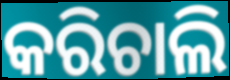
କରିଚାଲି